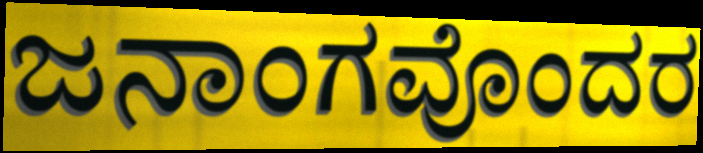
ಜನಾಂಗವೊಂದರ